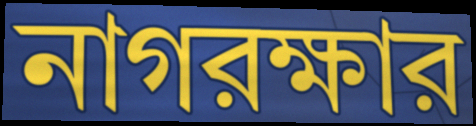
নাগরক্ষার